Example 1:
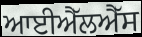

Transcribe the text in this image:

ਆਈਐੱਲਐੱਸ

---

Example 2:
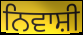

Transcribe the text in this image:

ਨਿਵਾਸ਼ੀ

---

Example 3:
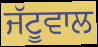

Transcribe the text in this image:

ਜੱਟੂਵਾਲ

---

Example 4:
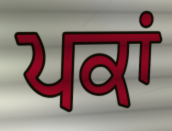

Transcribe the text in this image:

ਪਕਾਂ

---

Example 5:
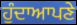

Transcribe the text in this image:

ਹੁੰਦਾਆਪਣੇ